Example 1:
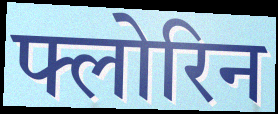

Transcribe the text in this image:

फ्लोरिन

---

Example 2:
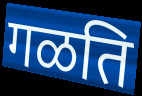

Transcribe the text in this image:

गळति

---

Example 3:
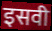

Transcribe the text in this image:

इसवी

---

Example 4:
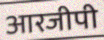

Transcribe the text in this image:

आरजीपी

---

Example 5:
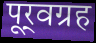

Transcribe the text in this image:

पूर्वग्रह